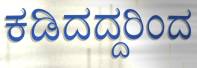
ಕಡಿದದ್ದರಿಂದ